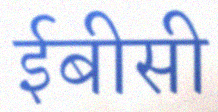
ईबीसी